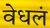
वेधलं